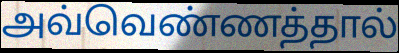
அவ்வெண்ணத்தால்